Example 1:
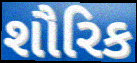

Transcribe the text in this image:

શૌરિક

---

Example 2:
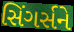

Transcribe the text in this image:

સિંગર્સને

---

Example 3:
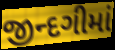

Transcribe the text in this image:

જીન્દગીમાં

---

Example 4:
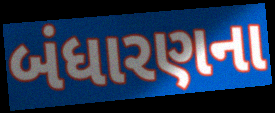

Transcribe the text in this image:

બંધારણના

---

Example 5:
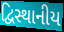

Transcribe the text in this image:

દ્વિસ્થાનીય